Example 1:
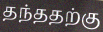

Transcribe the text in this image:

தந்ததற்கு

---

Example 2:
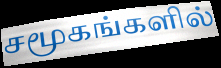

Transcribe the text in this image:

சமூகங்களில்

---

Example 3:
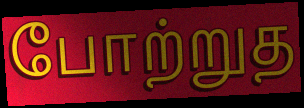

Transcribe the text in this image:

போற்றுத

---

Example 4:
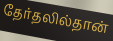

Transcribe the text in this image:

தேர்தலில்தான்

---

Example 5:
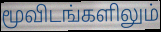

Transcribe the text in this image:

மூவிடங்களிலும்